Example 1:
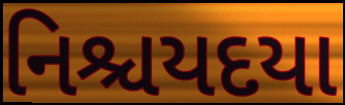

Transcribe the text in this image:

નિશ્ચયદયા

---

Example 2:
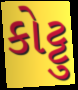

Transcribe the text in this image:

કોટ્ટુ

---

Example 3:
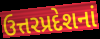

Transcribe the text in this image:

ઉત્તરપ્રદેશનાં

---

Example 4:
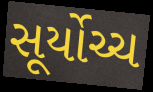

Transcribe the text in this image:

સૂર્યોચ્ચ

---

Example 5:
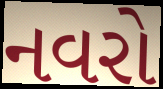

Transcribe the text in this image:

નવરો